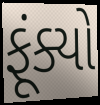
ફૂંક્યો